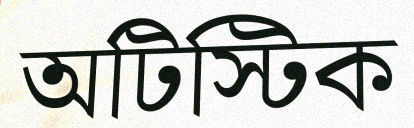
অটিস্টিক